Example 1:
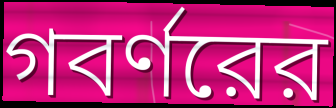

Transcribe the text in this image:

গবর্ণরের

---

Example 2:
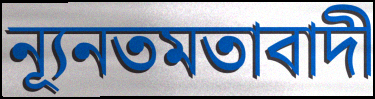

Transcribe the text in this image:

ন্যূনতমতাবাদী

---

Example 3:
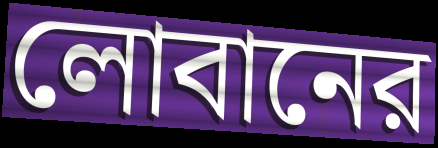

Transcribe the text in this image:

লোবানের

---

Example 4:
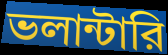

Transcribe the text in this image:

ভলান্টারি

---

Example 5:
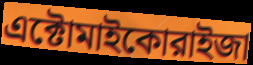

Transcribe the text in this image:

এক্টোমাইকোরাইজা